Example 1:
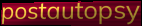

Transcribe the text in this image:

postautopsy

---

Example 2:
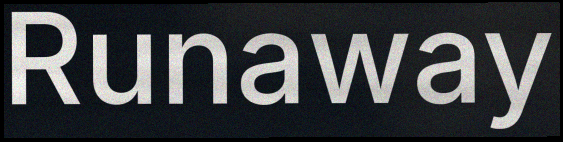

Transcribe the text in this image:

Runaway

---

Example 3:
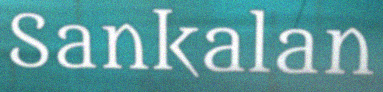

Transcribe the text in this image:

Sankalan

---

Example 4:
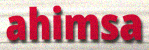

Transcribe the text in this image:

ahimsa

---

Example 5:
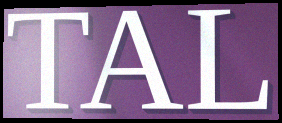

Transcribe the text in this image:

TAL